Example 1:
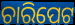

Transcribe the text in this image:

ଚାରିପେଟ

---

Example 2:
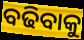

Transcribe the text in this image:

ବଢିବାକୁ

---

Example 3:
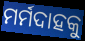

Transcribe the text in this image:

ମର୍ମଦାହକୁ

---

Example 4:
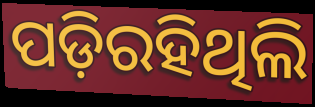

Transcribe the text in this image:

ପଡ଼ିରହିଥିଲି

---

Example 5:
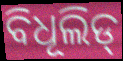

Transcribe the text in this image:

ବିଧୂଲିଡ୍